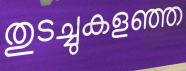
തുടച്ചുകളഞ്ഞ